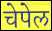
चेपेल